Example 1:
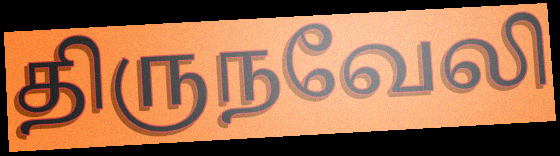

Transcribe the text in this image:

திருநவேலி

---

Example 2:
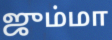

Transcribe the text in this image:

ஜும்மா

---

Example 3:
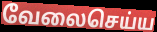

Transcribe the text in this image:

வேலைசெய்ய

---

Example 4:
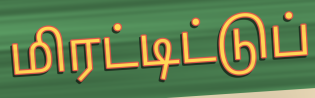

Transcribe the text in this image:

மிரட்டிட்டுப்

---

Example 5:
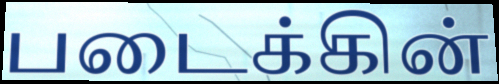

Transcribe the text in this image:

படைக்கின்